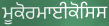
ਮੂਕੋਰਮਾਈਕੋਸਿਸ